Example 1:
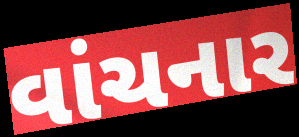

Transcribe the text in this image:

વાંચનાર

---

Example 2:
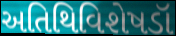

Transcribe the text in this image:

અતિથિવિશેષડૉ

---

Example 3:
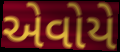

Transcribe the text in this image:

એવોયે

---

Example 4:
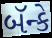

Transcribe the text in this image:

બૅન્કે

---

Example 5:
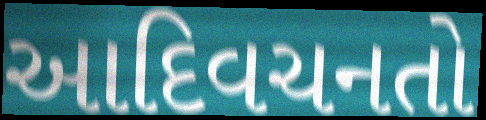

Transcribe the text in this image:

આદિવચનતો